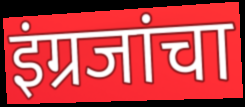
इंग्रजांचा